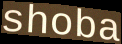
shoba